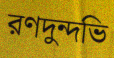
রণদুন্দভি